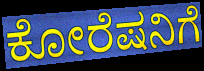
ಕೋರೆಷನಿಗೆ